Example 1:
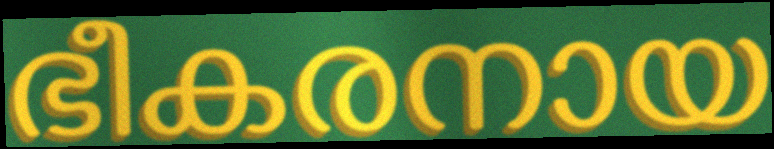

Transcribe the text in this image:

ഭീകരനായ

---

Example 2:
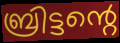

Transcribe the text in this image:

ബ്രിട്ടന്റെ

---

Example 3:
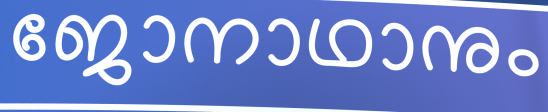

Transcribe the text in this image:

ജോനാഥാനും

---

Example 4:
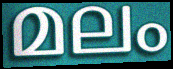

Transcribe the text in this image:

മലം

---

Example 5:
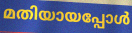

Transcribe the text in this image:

മതിയായപ്പോൾ